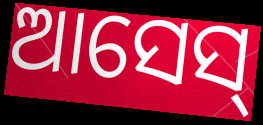
ଆସେସ୍